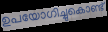
ഉപയോഗിച്ചുകൊണ്ട്